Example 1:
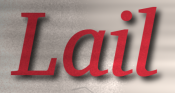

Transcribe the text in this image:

Lail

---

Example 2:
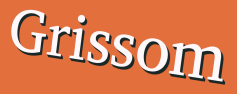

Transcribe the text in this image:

Grissom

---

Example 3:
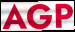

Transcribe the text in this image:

AGP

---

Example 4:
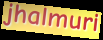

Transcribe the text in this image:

jhalmuri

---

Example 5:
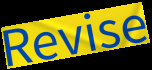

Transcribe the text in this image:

Revise